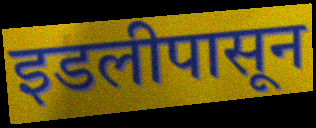
इडलीपासून